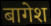
बागेश